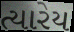
ત્યારેય